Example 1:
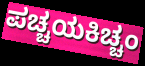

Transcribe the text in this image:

ಪಚ್ಚಯಕಿಚ್ಚಂ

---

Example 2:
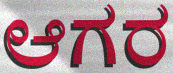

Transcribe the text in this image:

ಆಗರ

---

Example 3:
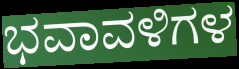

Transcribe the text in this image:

ಭವಾವಳಿಗಳ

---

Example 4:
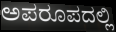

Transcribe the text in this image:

ಅಪರೂಪದಲ್ಲಿ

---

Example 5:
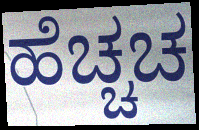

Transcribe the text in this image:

ಹೆಚ್ಚಚ